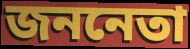
জননেতা